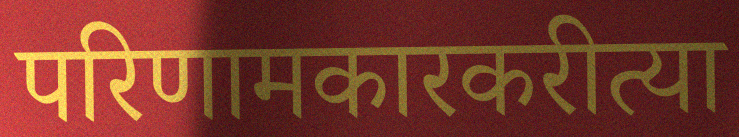
परिणामकारकरीत्या